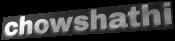
chowshathi